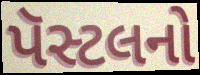
પૅસ્ટલનો